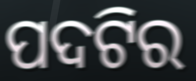
ପଦଟିର